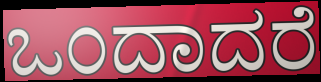
ಒಂದಾದರೆ